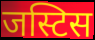
जस्टिस